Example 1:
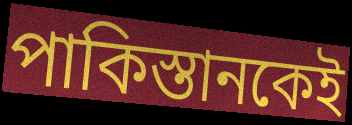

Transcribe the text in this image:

পাকিস্তানকেই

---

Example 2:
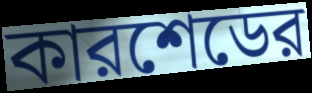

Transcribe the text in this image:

কারশেডের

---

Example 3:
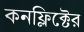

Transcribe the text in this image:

কনফ্লিক্টের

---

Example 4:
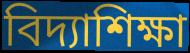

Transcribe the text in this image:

বিদ্যাশিক্ষা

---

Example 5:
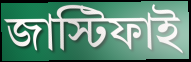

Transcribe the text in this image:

জাস্টিফাই